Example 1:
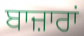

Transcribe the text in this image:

ਬਾਜ਼ਾਰਾਂ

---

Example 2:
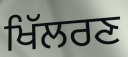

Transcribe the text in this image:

ਖਿੱਲਰਣ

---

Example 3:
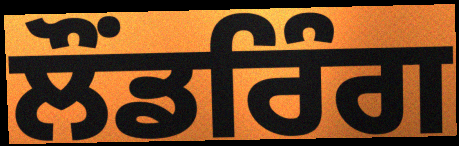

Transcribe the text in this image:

ਲੌਂਡਰਿੰਗ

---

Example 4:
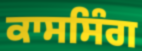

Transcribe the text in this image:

ਕਾਸਸਿੰਗ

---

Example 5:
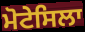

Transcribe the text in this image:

ਮੋਟੇਸਿਲਾ